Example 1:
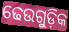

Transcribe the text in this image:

ଢେଉଗୁଡ଼ିକ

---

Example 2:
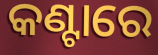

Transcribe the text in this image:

କଣ୍ଟାରେ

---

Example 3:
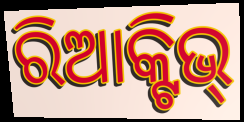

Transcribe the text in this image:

ରିଆକ୍ଟିଭ୍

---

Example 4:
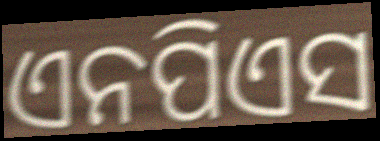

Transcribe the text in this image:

ଏନପିଏସ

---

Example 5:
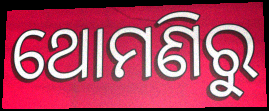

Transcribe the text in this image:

ଥୋମଣିରୁ